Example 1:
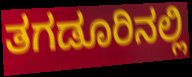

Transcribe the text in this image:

ತಗಡೂರಿನಲ್ಲಿ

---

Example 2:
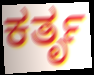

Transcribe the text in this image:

ಕರ್ತೃ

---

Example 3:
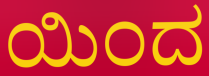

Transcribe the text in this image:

ಯಿಂದ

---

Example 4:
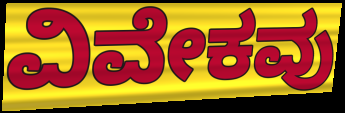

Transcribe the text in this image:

ವಿವೇಕವು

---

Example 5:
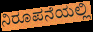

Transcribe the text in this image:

ನಿರೂಪನೆಯಲ್ಲಿ